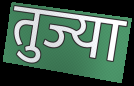
तुज्या